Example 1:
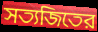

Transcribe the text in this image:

সত্যজিতের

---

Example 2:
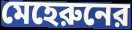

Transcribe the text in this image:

মেহেরুনের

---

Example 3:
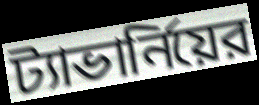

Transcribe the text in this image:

ট্যাভার্নিয়ের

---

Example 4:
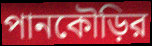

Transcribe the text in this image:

পানকৌড়ির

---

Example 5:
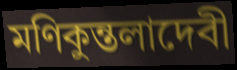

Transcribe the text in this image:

মণিকুন্তলাদেবী